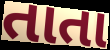
તાતા